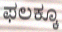
ಫಲಕ್ಕೂ